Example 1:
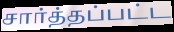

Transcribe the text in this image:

சார்த்தப்பட்ட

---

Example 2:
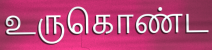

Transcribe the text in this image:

உருகொண்ட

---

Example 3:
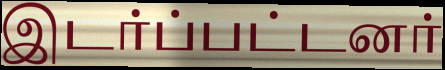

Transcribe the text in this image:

இடர்ப்பட்டனர்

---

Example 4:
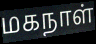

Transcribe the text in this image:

மகநாள்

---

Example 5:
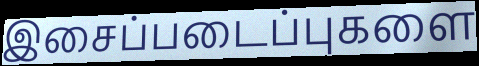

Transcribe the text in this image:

இசைப்படைப்புகளை